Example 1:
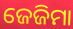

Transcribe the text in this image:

ଜେଜିମା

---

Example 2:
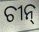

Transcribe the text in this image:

ଚୀନ୍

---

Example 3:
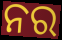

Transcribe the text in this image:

ନର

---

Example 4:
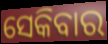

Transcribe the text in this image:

ସେକିବାର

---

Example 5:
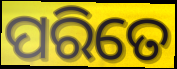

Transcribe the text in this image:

ପରିତେ